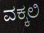
ವಕ್ಕಲಿ